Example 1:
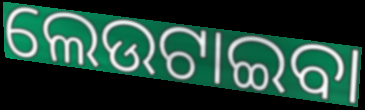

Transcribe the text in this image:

ଲେଉଟାଇବା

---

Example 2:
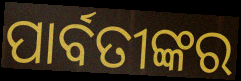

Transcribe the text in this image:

ପାର୍ବତୀଙ୍କର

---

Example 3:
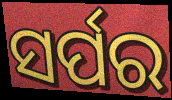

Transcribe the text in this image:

ସର୍ପର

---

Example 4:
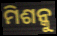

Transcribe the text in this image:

ମିଶନ୍କୁ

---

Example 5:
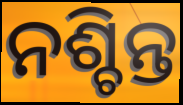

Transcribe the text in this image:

ନଶ୍ଚିନ୍ତ